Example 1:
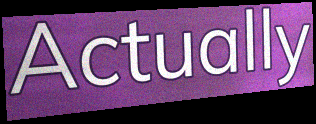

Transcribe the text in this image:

Actually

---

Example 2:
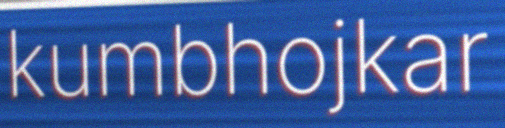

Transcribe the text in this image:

kumbhojkar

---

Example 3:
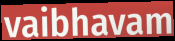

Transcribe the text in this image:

vaibhavam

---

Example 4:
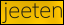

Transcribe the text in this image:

jeeten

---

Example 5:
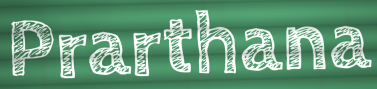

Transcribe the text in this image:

Prarthana